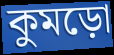
কুমড়ো